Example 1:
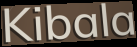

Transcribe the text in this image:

Kibala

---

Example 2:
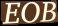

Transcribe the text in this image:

EOB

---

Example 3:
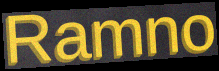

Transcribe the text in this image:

Ramno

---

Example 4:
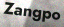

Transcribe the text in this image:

Zangpo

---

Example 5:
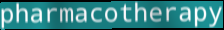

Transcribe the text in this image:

pharmacotherapy